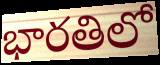
భారతిలో